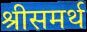
श्रीसमर्थ